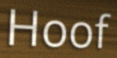
Hoof